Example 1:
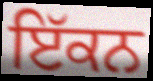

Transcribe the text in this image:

ਇੱਕਨ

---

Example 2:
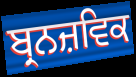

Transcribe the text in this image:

ਬ੍ਰਨਜ਼ਵਿਕ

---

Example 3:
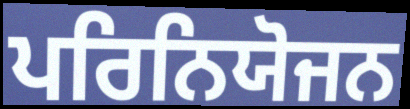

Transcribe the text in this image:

ਪਰਿਨਿਯੋਜਨ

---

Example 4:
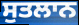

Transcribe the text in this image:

ਸੁਤਲਾਨ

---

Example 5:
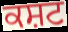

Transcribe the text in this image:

ਕਸ਼ਟ